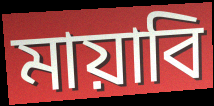
মায়াবি